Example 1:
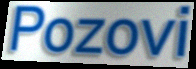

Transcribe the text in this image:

Pozovi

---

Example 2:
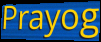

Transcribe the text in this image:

Prayog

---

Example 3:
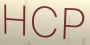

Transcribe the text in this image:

HCP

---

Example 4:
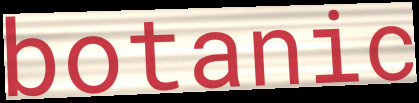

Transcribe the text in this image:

botanic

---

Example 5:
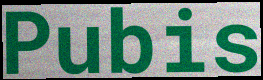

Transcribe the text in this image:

Pubis